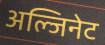
अल्जिनेट